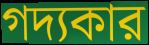
গদ্যকার